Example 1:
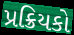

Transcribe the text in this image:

પ્રક્રિયકો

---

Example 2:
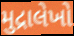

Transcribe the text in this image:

મુદ્રાલેખો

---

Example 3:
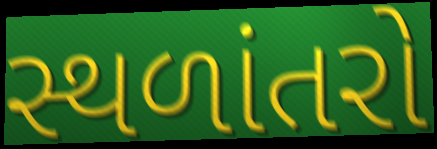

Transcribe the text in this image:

સ્થળાંતરો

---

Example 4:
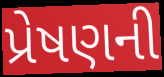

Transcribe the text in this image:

પ્રેષણની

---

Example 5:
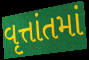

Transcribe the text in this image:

વૃત્તાંતમાં